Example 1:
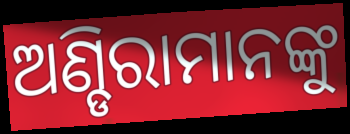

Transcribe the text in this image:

ଅଣ୍ଡିରାମାନଙ୍କୁ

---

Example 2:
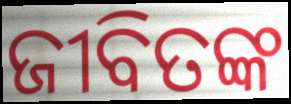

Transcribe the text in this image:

ଜୀବିତଙ୍କ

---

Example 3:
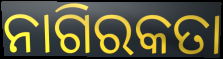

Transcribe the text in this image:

ନାଗିରକତା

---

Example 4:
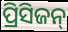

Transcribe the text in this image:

ପ୍ରିସିଜନ୍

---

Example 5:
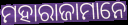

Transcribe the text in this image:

ମହାରାଜାମାନେ